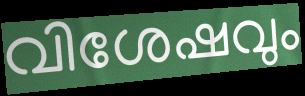
വിശേഷവും